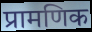
प्रामणिक